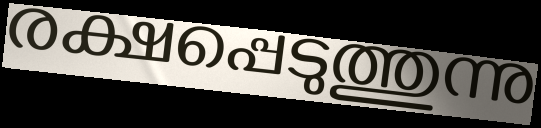
രക്ഷപ്പെടുത്തുന്നു